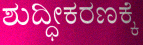
ಶುದ್ಧೀಕರಣಕ್ಕೆ